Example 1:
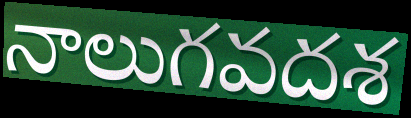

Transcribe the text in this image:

నాలుగవదశ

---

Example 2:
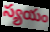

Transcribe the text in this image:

స్యయం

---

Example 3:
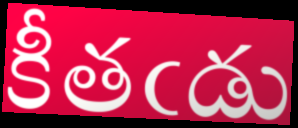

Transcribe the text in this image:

కీతఁడు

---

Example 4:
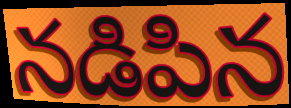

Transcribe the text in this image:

నడిపిన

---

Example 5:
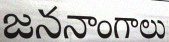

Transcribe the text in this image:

జననాంగాలు